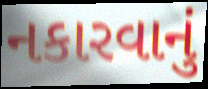
નકારવાનું